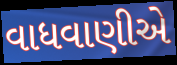
વાધવાણીએ